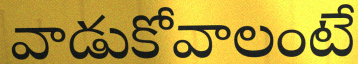
వాడుకోవాలంటే